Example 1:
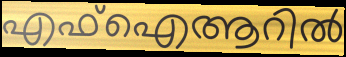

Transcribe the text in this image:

എഫ്ഐആറിൽ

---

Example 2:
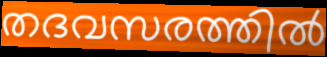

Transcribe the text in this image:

തദവസരത്തിൽ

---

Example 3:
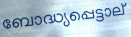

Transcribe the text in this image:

ബോദ്ധ്യപ്പെട്ടാല്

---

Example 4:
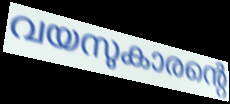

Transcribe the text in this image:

വയസുകാരന്റെ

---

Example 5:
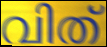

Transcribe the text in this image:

വിത്